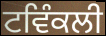
ਟਵਿੰਕਲੀ